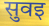
सुवइ